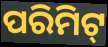
ପରିମିଟ୍